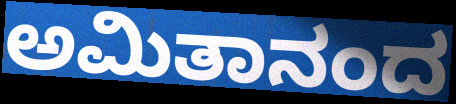
ಅಮಿತಾನಂದ